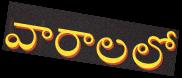
వారాలలో